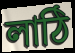
লাঠি